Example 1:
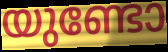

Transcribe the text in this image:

യുണ്ടോ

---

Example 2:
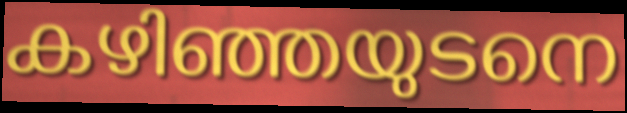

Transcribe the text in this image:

കഴിഞ്ഞയുടനെ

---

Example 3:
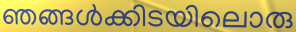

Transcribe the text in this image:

ഞങ്ങൾക്കിടയിലൊരു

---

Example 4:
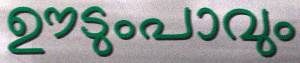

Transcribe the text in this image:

ഊടുംപാവും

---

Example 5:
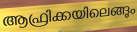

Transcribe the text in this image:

ആഫ്രിക്കയിലെങ്ങും